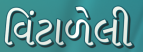
વિંટાળેલી